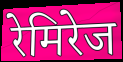
रेमिरेज